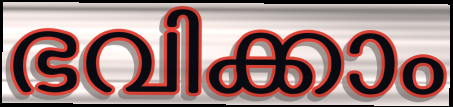
ഭവിക്കാം